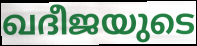
ഖദീജയുടെ